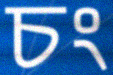
চং